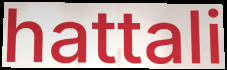
hattali